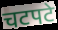
चटपटे